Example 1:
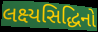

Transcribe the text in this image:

લક્ષ્યસિદ્ધિનો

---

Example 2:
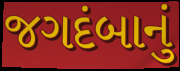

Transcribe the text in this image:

જગદંબાનું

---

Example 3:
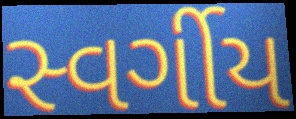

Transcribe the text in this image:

સ્વર્ગીય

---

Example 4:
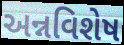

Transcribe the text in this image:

અન્નવિશેષ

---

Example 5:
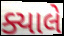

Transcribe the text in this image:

ક્યાલે